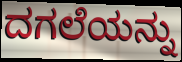
ದಗಲೆಯನ್ನು